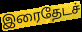
இரைதேடச்